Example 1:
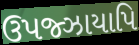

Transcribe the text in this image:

ઉપજ્ઝાયાપિ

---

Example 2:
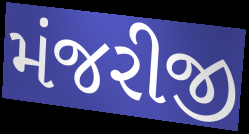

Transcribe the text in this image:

મંજરીજી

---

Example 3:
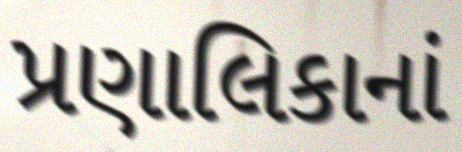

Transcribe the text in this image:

પ્રણાલિકાનાં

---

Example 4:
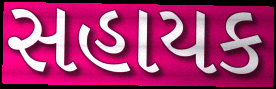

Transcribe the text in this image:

સહાયક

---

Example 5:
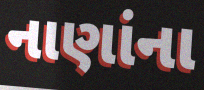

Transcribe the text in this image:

નાણાંના